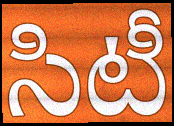
సిటీ